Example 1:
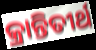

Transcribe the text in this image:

କ୍ରାନ୍ତିତୀର୍ଥ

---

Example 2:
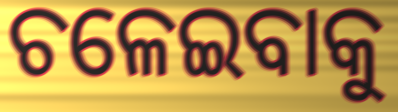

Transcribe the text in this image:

ଚଳେଇବାକୁ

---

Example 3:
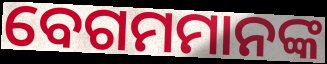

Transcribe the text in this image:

ବେଗମମାନଙ୍କ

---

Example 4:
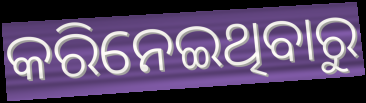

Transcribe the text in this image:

କରିନେଇଥିବାରୁ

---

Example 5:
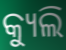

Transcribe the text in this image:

କ୍ୟୁଲି